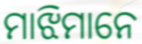
ମାଝିମାନେ